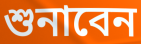
শুনাবেন